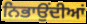
ਨਿਭਾਉਂਦੀਆਂ